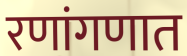
रणांगणात